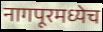
नागपूरमध्येच